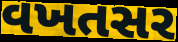
વખતસર